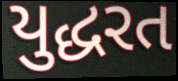
યુદ્ધરત